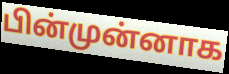
பின்முன்னாக